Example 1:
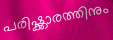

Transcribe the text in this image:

പരിഷ്ക്കാരത്തിനും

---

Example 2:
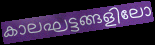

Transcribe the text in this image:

കാലഘട്ടങ്ങളിലോ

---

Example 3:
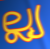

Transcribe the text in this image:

ല്ല്യ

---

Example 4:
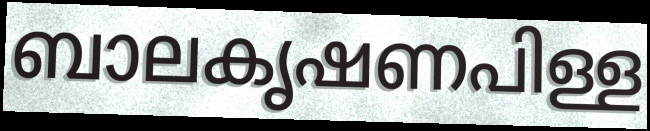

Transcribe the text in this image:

ബാലകൃഷണപിള്ള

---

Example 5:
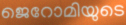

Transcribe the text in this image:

ജെറോമിയുടെ